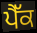
ਪੈੱਕ